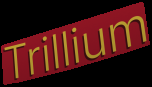
Trillium